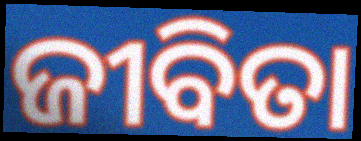
ଜୀବିତା